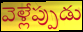
వెళ్లేప్పుడు